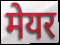
मेयर